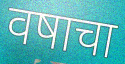
वषाचा